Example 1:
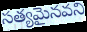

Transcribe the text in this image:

సత్యమైనవని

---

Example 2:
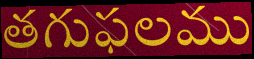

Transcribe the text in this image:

తగుఫలము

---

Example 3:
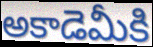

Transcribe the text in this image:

అకాడెమీకి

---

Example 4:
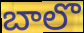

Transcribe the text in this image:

బాలొ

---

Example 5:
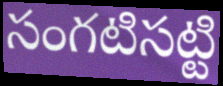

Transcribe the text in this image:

సంగటిసట్టి